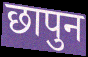
छापुन